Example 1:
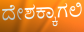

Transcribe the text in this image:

ದೇಶಕ್ಕಾಗಲಿ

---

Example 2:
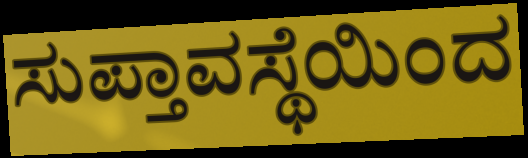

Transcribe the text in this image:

ಸುಪ್ತಾವಸ್ಥೆಯಿಂದ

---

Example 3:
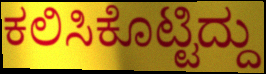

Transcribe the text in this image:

ಕಲಿಸಿಕೊಟ್ಟಿದ್ದು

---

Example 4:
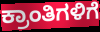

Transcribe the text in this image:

ಕ್ರಾಂತಿಗಳಿಗೆ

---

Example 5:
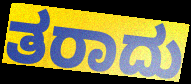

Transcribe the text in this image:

ತರಾದು